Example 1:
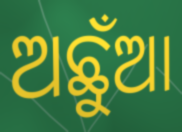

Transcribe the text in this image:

ଅଛୁଁଆ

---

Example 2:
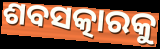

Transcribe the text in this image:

ଶବସତ୍କାରକୁ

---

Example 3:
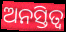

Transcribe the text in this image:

ଅନସ୍ତିତ୍ୱ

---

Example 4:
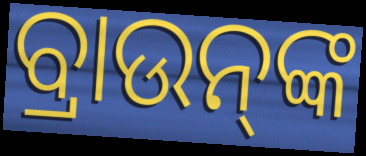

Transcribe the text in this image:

ବ୍ରାଉନ୍‌ଙ୍କ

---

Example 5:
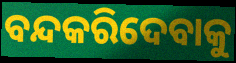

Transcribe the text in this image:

ବନ୍ଦକରିଦେବାକୁ